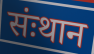
संःथान